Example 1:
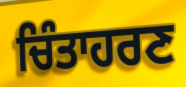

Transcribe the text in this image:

ਚਿੰਤਾਹਰਣ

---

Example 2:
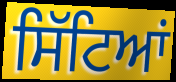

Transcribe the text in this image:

ਸਿੱਟਿਆਂ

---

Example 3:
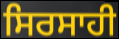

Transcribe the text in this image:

ਸਿਰਸਾਹੀ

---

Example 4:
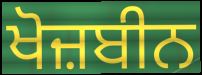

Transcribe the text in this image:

ਖੋਜ਼ਬੀਨ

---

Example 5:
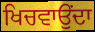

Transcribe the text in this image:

ਖਿਚਵਾਉਂਦਾ